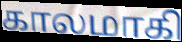
காலமாகி